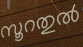
സൂറതുൽ